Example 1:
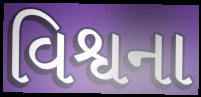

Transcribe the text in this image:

વિશ્વના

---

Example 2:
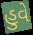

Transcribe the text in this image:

હુવે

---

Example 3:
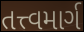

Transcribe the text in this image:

તત્ત્વમાર્ગ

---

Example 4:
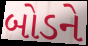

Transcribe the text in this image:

બોડને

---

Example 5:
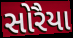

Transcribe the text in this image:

સોરૈયા